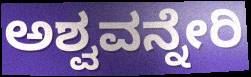
ಅಶ್ವವನ್ನೇರಿ